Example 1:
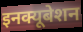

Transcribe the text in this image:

इनक्यूबेशन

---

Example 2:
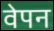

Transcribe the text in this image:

वेपन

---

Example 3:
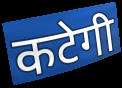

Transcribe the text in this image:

कटेगी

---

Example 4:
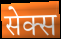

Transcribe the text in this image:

सेक्स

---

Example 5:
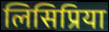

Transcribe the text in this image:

लिसिप्रिया